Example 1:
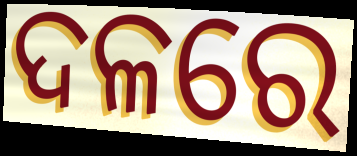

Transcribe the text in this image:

ଦଳରେ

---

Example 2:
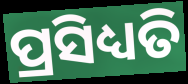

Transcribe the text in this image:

ପ୍ରସିଧ୍ୟତି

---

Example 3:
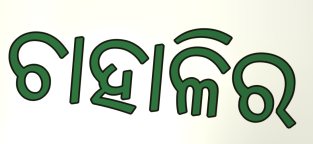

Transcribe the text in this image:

ଚାହାଳିର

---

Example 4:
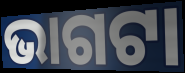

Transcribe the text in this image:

ଭାଗଟା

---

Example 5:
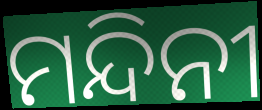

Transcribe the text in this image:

ମନ୍ଦିନୀ